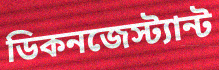
ডিকনজেস্ট্যান্ট